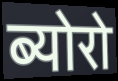
ब्योरो